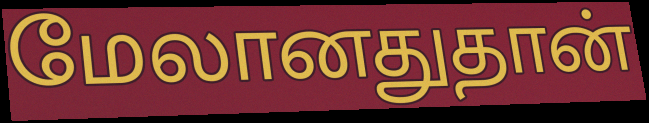
மேலானதுதான்